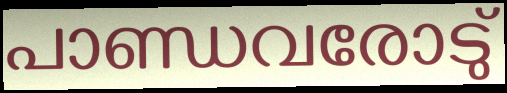
പാണ്ഡവരോടു്